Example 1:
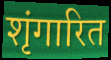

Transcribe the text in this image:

शृंगारित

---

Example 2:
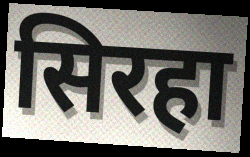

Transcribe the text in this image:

सिरहा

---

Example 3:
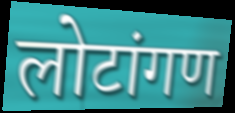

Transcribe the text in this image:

लोटांगण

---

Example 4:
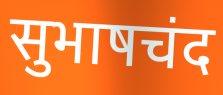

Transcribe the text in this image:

सुभाषचंद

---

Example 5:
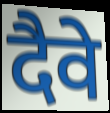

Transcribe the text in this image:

दैवे